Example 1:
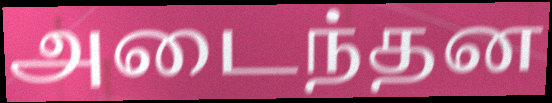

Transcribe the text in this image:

அடைந்தன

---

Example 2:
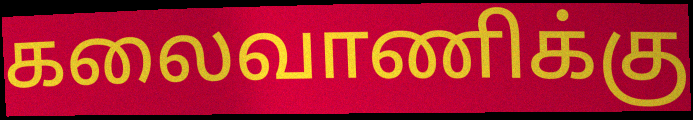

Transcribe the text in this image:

கலைவாணிக்கு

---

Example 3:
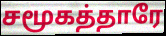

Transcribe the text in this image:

சமூகத்தாரே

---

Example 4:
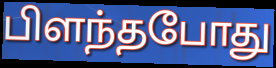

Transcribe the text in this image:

பிளந்தபோது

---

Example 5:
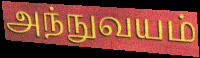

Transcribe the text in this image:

அந்நுவயம்